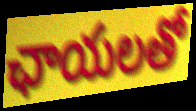
ఛాయలతో